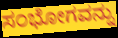
ಸಂಭೋಗವನ್ನು